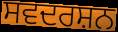
ਸਵਦਰਸ਼ਨ